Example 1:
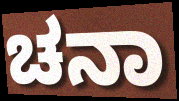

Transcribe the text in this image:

ಚನಾ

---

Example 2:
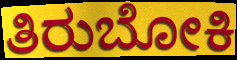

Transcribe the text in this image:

ತಿರುಬೋಕಿ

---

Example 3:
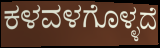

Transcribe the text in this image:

ಕಳವಳಗೊಳ್ಳದೆ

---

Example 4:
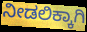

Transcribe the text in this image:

ನೀಡಲಿಕ್ಕಾಗಿ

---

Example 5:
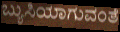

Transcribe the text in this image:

ಬ್ಯುಸಿಯಾಗುವಂತೆ